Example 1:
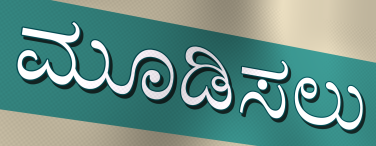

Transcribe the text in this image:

ಮೂಡಿಸಲು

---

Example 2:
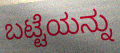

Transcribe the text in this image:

ಬಟ್ಟೆಯನ್ನು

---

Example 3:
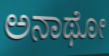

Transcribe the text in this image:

ಅನಾಥೋ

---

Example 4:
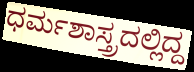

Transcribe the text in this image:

ಧರ್ಮಶಾಸ್ತ್ರದಲ್ಲಿದ್ದ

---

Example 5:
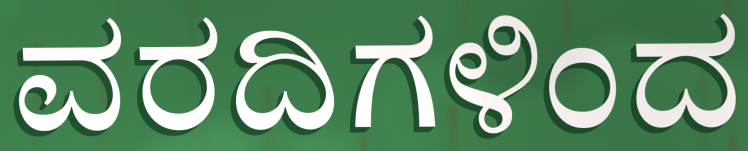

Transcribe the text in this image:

ವರದಿಗಳಿಂದ